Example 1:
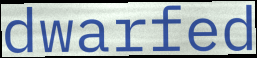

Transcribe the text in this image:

dwarfed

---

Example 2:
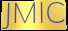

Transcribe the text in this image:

JMIC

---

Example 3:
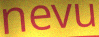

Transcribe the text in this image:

nevu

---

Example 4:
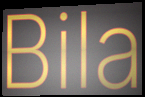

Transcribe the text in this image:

Bila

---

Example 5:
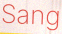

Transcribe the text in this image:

Sang